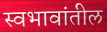
स्वभावांतील